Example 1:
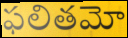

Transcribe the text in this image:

ఫలితమో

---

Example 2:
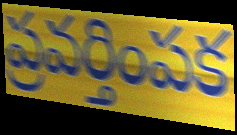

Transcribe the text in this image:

ప్రవర్తింపక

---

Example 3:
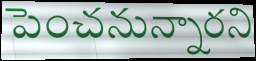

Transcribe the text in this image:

పెంచనున్నారని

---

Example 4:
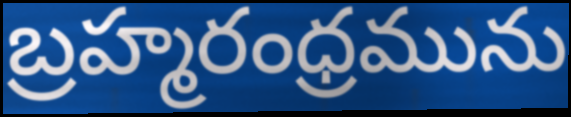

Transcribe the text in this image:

బ్రహ్మరంధ్రమును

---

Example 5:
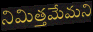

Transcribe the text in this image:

నిమిత్తమేమని